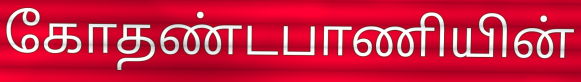
கோதண்டபாணியின்